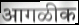
आगळीक